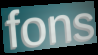
fons